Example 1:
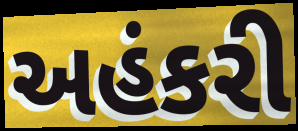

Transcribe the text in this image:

અહંકરી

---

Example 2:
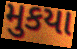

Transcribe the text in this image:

મુકયા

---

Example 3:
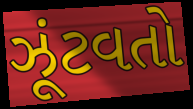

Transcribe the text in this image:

ઝૂંટવતો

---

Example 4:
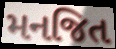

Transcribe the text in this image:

મનજિત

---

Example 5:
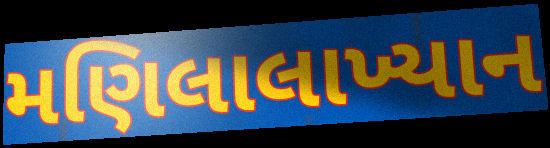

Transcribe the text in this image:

મણિલાલાખ્યાન